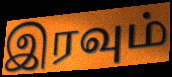
இரவும்